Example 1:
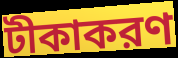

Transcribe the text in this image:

টীকাকরণ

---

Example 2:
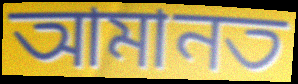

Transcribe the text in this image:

আমানত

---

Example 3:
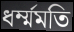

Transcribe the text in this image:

ধর্ম্মমতি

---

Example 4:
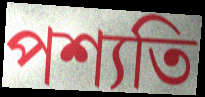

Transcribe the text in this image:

পশ্যতি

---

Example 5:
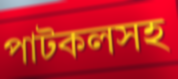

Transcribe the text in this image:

পাটকলসহ